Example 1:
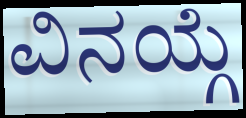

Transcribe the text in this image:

ವಿನಯ್ಗೆ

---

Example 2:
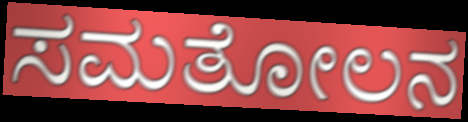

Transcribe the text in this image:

ಸಮತೋಲನ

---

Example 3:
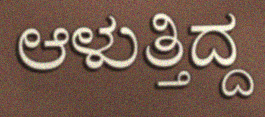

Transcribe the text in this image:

ಆಳುತ್ತಿದ್ದ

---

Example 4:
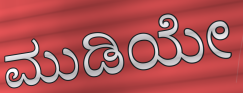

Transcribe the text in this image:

ಮುಡಿಯೇ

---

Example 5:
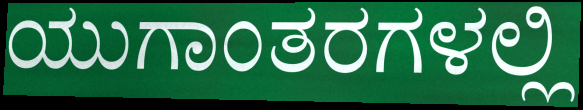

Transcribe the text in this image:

ಯುಗಾಂತರಗಳಲ್ಲಿ